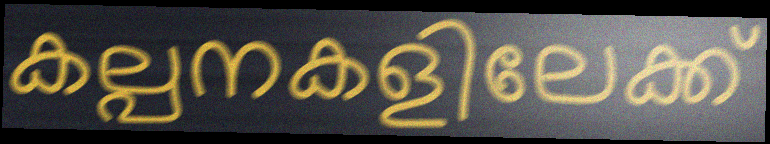
കല്പനകളിലേക്ക്